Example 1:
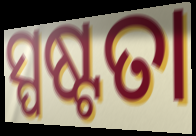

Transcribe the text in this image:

ସ୍ପଷ୍ଟତା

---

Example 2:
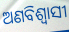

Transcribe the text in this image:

ଅଣବିଶ୍ୱାସୀ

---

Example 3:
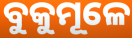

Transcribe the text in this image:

ବୁକୁମୂଳେ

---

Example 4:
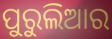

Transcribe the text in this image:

ପୁରୁଲିଆର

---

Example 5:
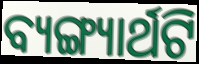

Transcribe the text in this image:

ବ୍ୟଙ୍ଗ୍ୟାର୍ଥଟି